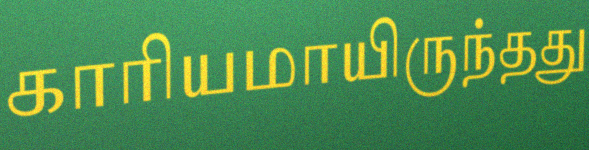
காரியமாயிருந்தது